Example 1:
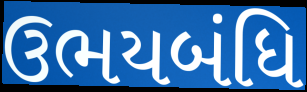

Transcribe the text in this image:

ઉભયબંધિ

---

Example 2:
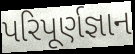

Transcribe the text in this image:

પરિપૂર્ણજ્ઞાન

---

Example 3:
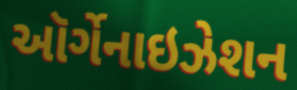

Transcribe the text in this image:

ઑર્ગેનાઇઝેશન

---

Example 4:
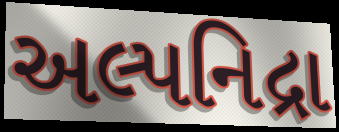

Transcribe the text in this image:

અલ્પનિદ્રા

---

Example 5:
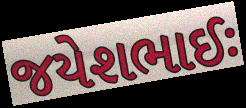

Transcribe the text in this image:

જયેશભાઈઃ